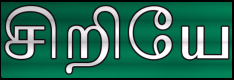
சிறியே